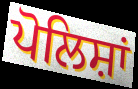
ਪੋਲਿਸ਼ਾਂ